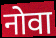
नोवा